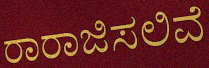
ರಾರಾಜಿಸಲಿವೆ